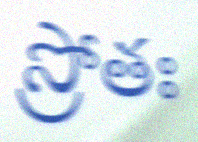
స్రోతః